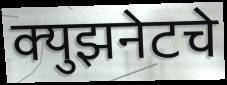
क्युझनेटचे